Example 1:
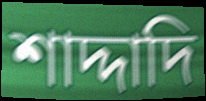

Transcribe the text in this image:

শাদ্দাদি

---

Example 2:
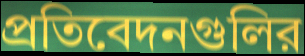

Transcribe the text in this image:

প্রতিবেদনগুলির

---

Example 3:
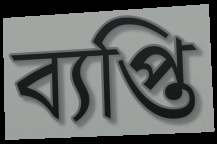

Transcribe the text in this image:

ব্যপ্তি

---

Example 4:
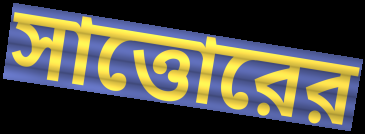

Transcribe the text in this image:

সাত্তোরের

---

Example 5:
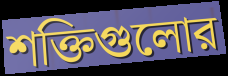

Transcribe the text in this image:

শক্তিগুলোর